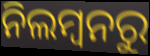
ନିଲମ୍ବନରୁ